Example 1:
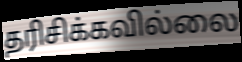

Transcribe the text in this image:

தரிசிக்கவில்லை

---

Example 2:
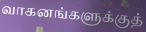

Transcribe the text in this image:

வாகனங்களுக்குத்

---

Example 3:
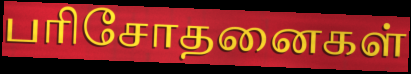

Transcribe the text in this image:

பரிசோதனைகள்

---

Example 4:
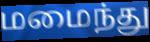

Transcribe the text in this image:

மமைந்து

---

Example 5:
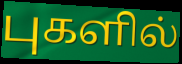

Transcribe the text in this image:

புகளில்